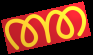
ത്ത